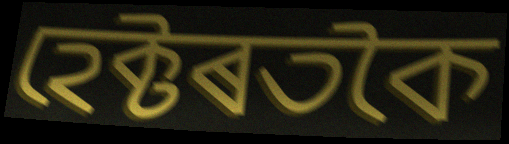
হেক্টৰতকৈ